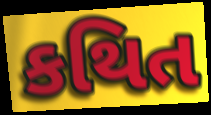
કથિત